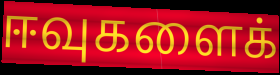
ஈவுகளைக்